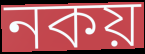
নকয়